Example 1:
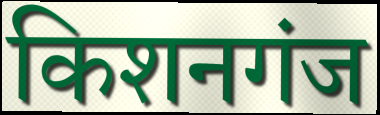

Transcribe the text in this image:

किशनगंज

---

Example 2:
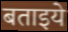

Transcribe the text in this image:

बताइये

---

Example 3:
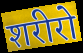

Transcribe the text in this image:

शरीरो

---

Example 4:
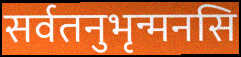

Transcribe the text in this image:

सर्वतनुभृन्मनसि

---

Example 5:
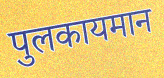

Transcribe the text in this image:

पुलकायमान